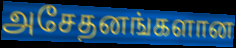
அசேதனங்களான